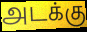
அடக்கு